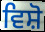
ਵਿਸ਼ੋ